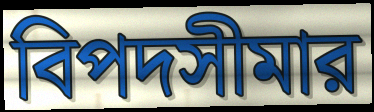
বিপদসীমার